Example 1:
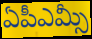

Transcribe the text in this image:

ఏపీఎమ్సీ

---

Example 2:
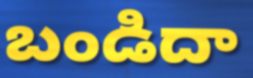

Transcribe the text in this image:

బండిదా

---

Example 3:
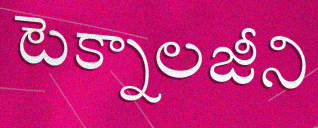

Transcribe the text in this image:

టెక్నాలజీని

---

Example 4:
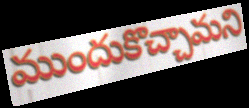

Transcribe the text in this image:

ముందుకొచ్చామని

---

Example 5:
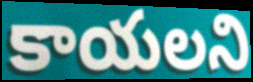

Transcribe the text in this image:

కాయలని